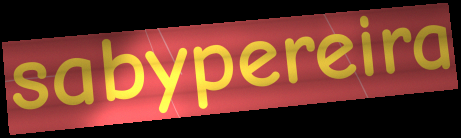
sabypereira